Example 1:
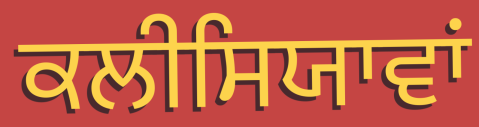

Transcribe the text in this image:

ਕਲੀਸਿਯਾਵਾਂ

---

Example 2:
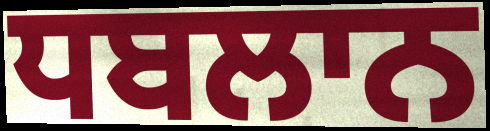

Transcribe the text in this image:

ਧਬਲਾਨ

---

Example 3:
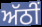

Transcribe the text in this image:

ਅੱਠੀਂ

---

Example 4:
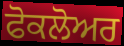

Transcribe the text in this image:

ਫੋਕਲੋਅਰ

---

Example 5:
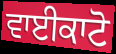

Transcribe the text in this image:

ਵਾਈਕਾਟੋ